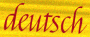
deutsch